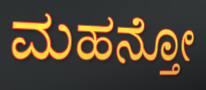
ಮಹನ್ತೋ